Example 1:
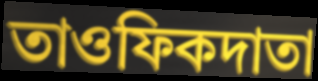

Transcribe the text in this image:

তাওফিকদাতা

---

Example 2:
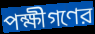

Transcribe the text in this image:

পক্ষীগণের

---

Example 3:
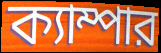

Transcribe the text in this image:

ক্যাম্পার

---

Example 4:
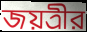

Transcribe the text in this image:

জয়ত্রীর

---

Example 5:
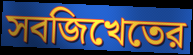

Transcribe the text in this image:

সবজিখেতের